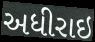
અધીરાઇ